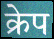
क्रेप